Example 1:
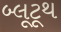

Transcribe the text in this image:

બ્લૂટૂથ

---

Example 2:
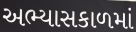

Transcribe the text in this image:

અભ્યાસકાળમાં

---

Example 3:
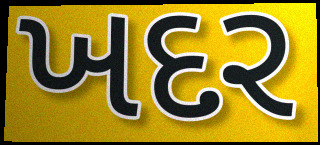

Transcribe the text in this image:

ખદર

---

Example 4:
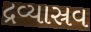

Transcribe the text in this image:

દ્રવ્યાસ્રવ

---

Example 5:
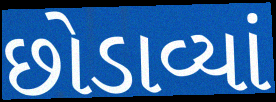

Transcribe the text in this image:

છોડાવ્યાં